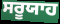
ਸਰੂਯਾਹ